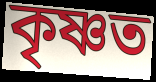
কৃষ্ণত